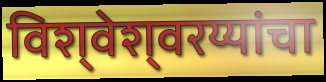
विश्वेश्वरय्यांचा